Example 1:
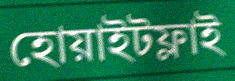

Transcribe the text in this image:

হোয়াইটফ্লাই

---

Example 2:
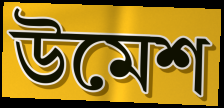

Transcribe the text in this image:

উমেশ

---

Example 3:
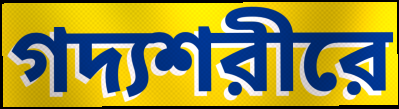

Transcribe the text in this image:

গদ্যশরীরে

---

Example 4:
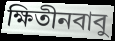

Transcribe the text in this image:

ক্ষিতীনবাবু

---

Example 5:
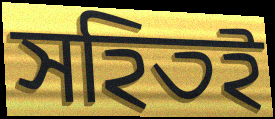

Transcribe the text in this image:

সহিতই